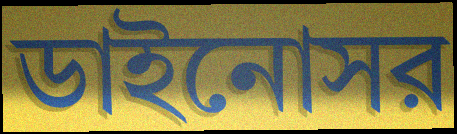
ডাইনোসর